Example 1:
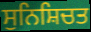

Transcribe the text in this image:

ਸੁਨਿਸ਼ਿਚਤ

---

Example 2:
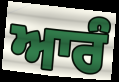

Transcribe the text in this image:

ਆਰੰ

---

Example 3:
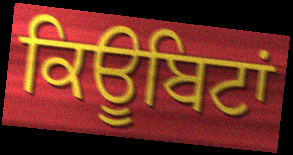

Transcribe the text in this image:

ਕਿਊਬਿਟਾਂ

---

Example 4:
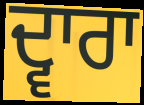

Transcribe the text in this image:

ਦ੍ਵਾਰਾ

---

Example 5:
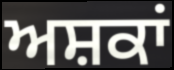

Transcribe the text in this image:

ਅਸ਼ਕਾਂ